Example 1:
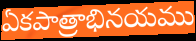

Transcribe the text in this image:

ఏకపాత్రాభినయము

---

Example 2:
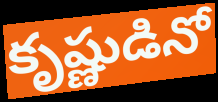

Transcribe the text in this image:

కృష్ణుడినో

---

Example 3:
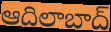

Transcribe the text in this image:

ఆదిలాబాద్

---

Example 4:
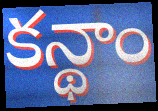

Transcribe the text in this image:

కన్థాం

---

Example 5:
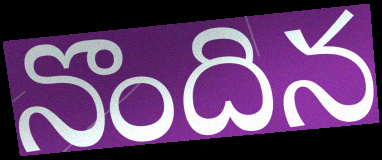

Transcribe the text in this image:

నొందిన